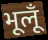
भूलूँ